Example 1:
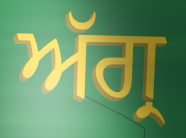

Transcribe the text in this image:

ਅੱਗ੍ਰ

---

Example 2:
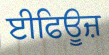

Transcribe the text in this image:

ਈਫਿਊਜ਼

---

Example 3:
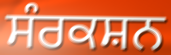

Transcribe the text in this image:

ਸੰਰਕਸ਼ਨ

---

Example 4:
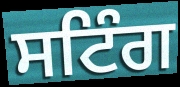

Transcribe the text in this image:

ਸਟਿੰਗ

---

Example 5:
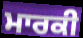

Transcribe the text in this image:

ਮਾਰਕੀ